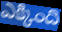
ఎక్కింది